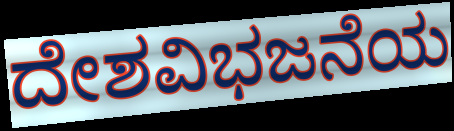
ದೇಶವಿಭಜನೆಯ